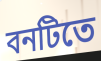
বনটিতে